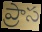
ప్రాస